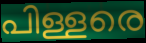
പിള്ളരെ